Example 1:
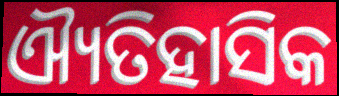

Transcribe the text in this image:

ଐ୍ୟତିହାସିକ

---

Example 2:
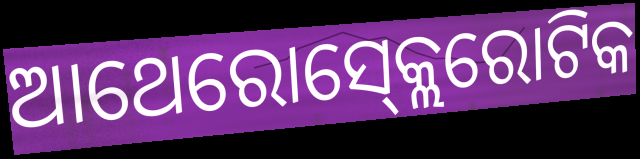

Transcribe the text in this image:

ଆଥେରୋସ୍କ୍ଲେରୋଟିକ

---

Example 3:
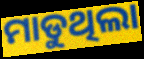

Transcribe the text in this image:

ମାଡୁଥିଲା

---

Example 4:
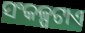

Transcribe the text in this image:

ସଂକଳ୍ପଟାଏ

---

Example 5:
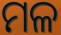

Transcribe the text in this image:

ମଳ